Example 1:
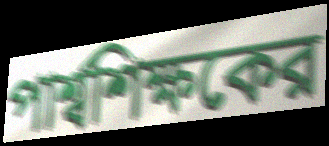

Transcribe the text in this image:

পার্শ্বশিক্ষকের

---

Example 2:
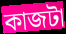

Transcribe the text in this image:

কাজটা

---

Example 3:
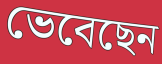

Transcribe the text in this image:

ভেবেছেন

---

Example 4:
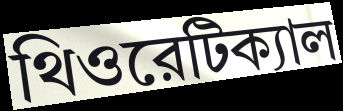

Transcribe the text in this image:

থিওরেটিক্যাল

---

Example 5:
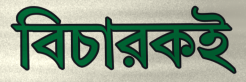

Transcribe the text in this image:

বিচারকই